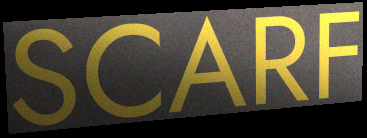
SCARF